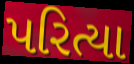
પરિત્યા